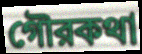
গৌরকথা